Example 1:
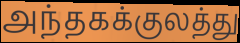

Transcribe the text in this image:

அந்தகக்குலத்து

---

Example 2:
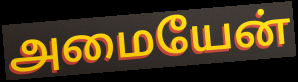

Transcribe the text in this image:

அமையேன்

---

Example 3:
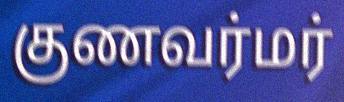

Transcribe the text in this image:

குணவர்மர்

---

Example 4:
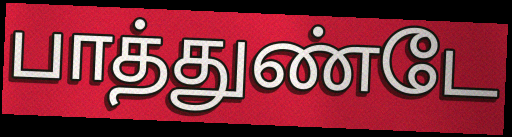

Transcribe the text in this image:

பாத்துண்டே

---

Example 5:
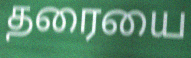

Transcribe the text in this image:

தரையை